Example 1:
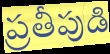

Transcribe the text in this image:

ప్రతీపుడి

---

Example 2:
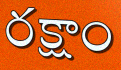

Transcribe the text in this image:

రక్షాం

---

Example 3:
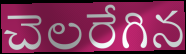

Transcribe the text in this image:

చెలరేగిన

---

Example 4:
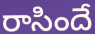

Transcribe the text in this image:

రాసిందే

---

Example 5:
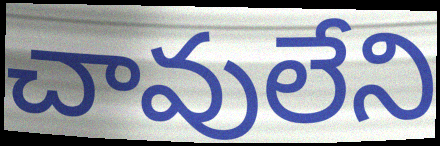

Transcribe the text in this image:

చావులేని